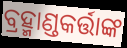
ବ୍ରହ୍ମାଣ୍ଡକର୍ତ୍ତାଙ୍କ